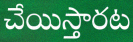
చేయిస్తారట